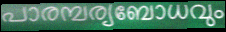
പാരമ്പര്യബോധവും